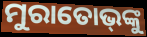
ମୁରାତୋଭ୍‌ଙ୍କୁ